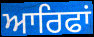
ਆਰਿਫਾਂ